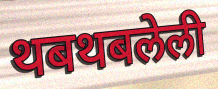
थबथबलेली